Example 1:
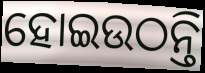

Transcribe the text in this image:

ହୋଇଉଠନ୍ତି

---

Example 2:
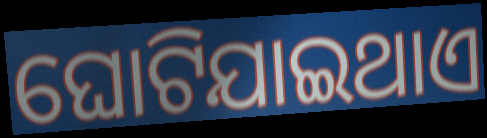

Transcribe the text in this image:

ଘୋଟିଯାଇଥାଏ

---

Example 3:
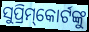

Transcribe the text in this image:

ସୁପ୍ରିମ୍‌କୋର୍ଟଙ୍କୁ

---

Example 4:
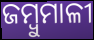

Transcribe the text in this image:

ଜମ୍ବୁମାଳୀ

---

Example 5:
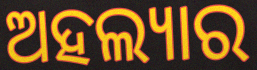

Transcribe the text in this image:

ଅହଲ୍ୟାର